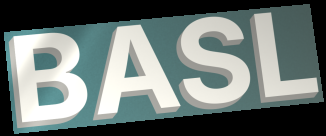
BASL